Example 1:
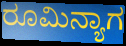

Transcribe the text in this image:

ರೂಮಿನ್ಯಾಗ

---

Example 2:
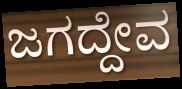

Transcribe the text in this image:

ಜಗದ್ದೇವ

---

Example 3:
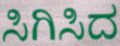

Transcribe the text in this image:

ಸಿಗಿಸಿದ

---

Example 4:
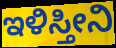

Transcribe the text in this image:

ಇಳಿಸ್ತೀನಿ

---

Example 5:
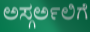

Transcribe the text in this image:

ಅಸ್ಗರ್ಅಲಿಗೆ